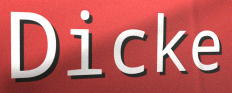
Dicke